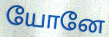
யோனே